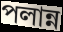
পলান্ন